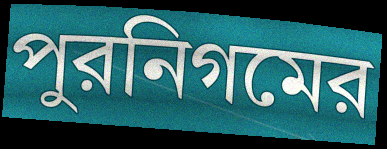
পুরনিগমের